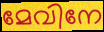
മേവിനേ